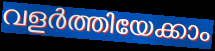
വളർത്തിയേക്കാം